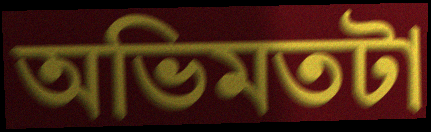
অভিমতটা